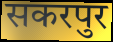
सकरपुर